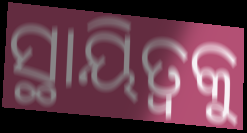
ସ୍ଥାୟିତ୍ୱକୁ